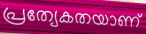
പ്രത്യേകതയാണ്